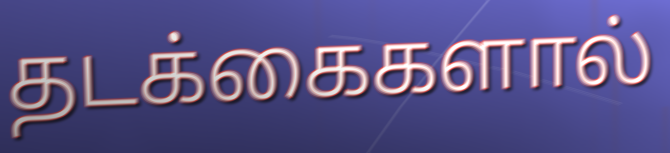
தடக்கைகளால்